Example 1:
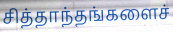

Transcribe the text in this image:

சித்தாந்தங்களைச்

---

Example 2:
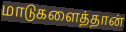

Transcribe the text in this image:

மாடுகளைத்தான்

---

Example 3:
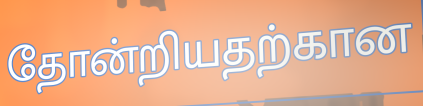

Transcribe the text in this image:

தோன்றியதற்கான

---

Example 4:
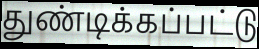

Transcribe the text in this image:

துண்டிக்கப்பட்டு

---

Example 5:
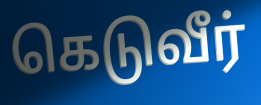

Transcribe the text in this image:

கெடுவீர்